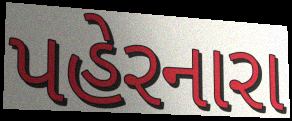
પહેરનારા